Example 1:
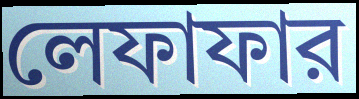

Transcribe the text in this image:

লেফাফার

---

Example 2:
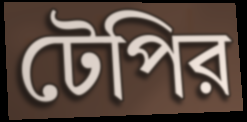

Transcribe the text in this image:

টেপির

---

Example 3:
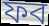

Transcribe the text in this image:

ফব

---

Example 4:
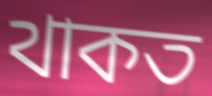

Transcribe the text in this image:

থাকত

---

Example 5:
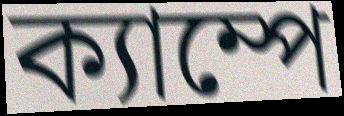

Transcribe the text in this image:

ক্যাম্পে